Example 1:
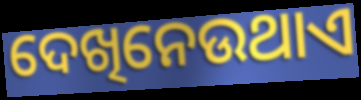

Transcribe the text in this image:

ଦେଖିନେଉଥାଏ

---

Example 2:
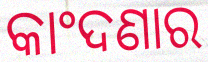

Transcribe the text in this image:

କାଂଦଣାର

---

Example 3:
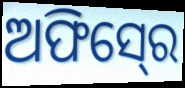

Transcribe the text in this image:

ଅଫିସ୍‍ରେ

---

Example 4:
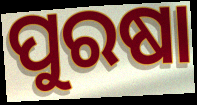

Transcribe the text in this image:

ପୁରଷା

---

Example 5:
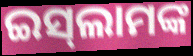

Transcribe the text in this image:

ଇସ୍‌ଲାମଙ୍କ